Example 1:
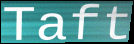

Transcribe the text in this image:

Taft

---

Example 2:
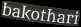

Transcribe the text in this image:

bakothari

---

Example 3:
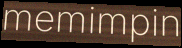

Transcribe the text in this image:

memimpin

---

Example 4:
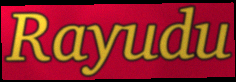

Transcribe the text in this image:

Rayudu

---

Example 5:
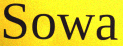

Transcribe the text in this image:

Sowa